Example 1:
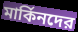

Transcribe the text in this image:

মার্কিনদের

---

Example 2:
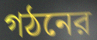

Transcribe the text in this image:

গঠনের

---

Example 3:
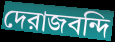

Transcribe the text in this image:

দেরাজবন্দি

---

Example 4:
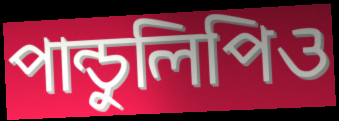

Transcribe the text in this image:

পান্ডুলিপিও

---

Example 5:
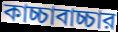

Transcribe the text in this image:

কাচ্চাবাচ্চার